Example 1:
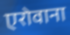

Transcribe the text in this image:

एरोवाना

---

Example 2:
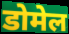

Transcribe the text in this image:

डोमेल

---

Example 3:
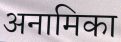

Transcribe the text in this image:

अनामिका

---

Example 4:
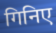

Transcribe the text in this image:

गिनिए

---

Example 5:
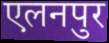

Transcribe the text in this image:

एलनपुर